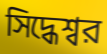
সিদ্ধেশ্বর